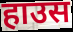
हाउस